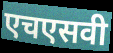
एचएसवी